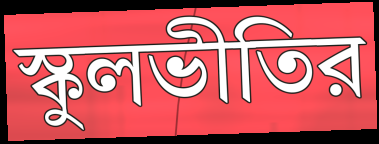
স্কুলভীতির